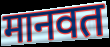
मानवत